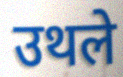
उथले